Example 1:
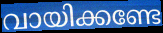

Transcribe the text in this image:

വായിക്കണ്ടേ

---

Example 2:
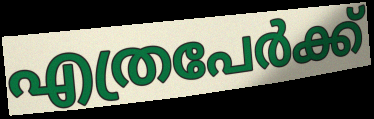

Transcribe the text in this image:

എത്രപേർക്ക്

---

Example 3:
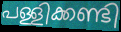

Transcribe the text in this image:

പള്ളിക്കണ്ടി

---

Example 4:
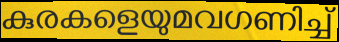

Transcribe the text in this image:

കുരകളെയുമവഗണിച്ച്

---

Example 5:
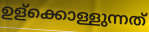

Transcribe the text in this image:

ഉള്ക്കൊള്ളുന്നത്